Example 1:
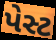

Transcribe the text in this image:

પેસ્ટ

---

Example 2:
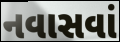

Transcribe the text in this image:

નવાસવાં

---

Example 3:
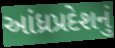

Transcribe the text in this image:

આંધ્રપ્રદેશનું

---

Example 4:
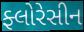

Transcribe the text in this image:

ફ્લોરેસીન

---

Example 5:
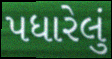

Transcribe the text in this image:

પધારેલું